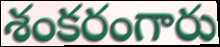
శంకరంగారు